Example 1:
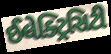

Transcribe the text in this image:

ઈલેક્ટ્રિસિટી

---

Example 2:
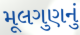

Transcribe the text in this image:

મૂલગુણનું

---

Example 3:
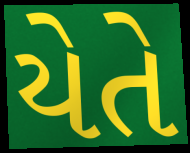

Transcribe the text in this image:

યેતે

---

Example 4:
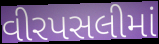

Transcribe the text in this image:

વીરપસલીમાં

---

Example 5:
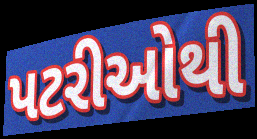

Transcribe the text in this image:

પટરીઓથી